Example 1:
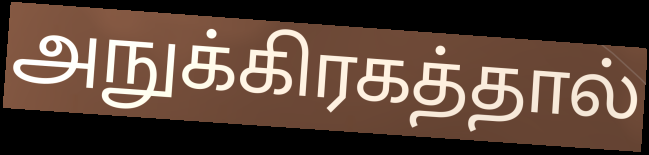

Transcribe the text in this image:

அநுக்கிரகத்தால்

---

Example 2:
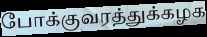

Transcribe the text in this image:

போக்குவரத்துக்கழக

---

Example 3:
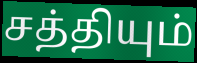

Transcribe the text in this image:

சத்தியும்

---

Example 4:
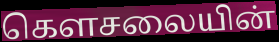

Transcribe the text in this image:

கௌசலையின்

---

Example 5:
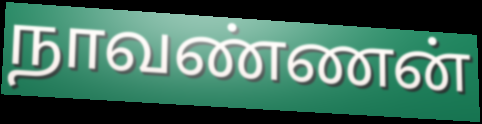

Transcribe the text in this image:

நாவண்ணன்